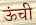
ऊंची